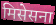
मिसेसना